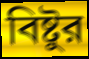
বিষ্টুর